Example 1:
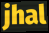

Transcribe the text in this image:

jhal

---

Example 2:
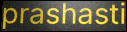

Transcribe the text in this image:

prashasti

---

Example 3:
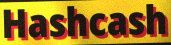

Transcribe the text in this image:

Hashcash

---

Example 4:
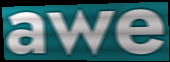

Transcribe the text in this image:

awe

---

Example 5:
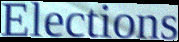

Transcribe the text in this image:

Elections